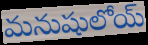
మనుషులోయ్